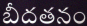
బీదతనం